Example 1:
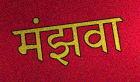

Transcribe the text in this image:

मंझवा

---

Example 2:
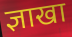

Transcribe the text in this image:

ज्ञाखा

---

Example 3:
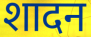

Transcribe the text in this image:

शादन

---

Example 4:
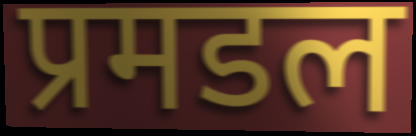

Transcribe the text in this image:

प्रमडल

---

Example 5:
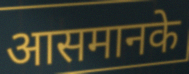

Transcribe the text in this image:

आसमानके